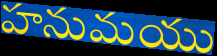
హనుమయు